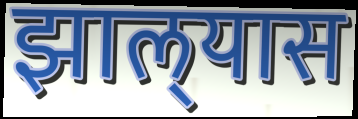
झाल्यास